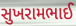
સુખરામભાઈ